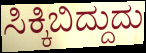
ಸಿಕ್ಕಿಬಿದ್ದುದು